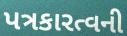
પત્રકારત્વની